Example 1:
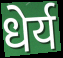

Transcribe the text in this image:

धेर्य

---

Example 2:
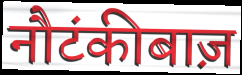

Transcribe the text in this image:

नौटंकीबाज़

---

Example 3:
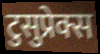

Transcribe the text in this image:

टुसुप्रेक्स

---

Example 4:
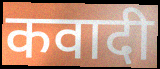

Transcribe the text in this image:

कवादी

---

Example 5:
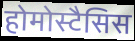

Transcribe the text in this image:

होमोस्टैसिस